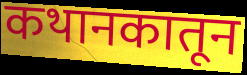
कथानकातून